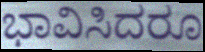
ಭಾವಿಸಿದರೂ